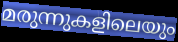
മരുന്നുകളിലെയും